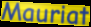
Mauriat